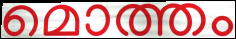
മൊത്തം